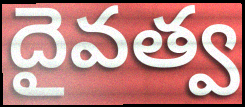
దైవత్వ